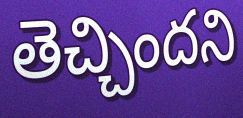
తెచ్చిందని